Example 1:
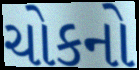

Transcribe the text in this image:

ચોકનો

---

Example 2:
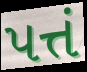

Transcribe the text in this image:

પત્તં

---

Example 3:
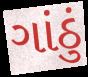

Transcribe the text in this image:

ગાંઠું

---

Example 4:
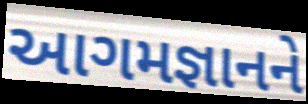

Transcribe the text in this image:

આગમજ્ઞાનને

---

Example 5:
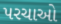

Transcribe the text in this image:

પરચાઓ